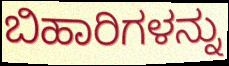
ಬಿಹಾರಿಗಳನ್ನು